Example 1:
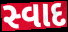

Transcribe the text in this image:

સ્વાદ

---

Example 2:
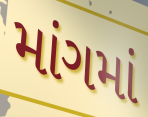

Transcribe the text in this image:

માંગમાં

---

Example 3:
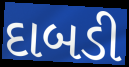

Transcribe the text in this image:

દાબડી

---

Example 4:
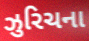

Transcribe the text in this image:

ઝુરિચના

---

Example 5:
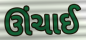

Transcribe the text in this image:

ઊંચાઈ